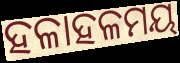
ହଳାହଳମୟ